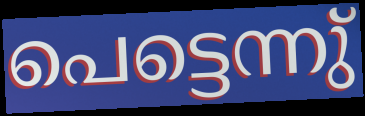
പെട്ടെന്നു്